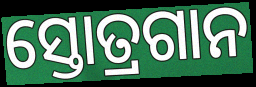
ସ୍ତୋତ୍ରଗାନ